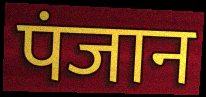
पंजान